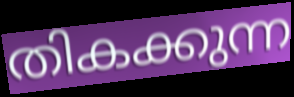
തികക്കുന്ന